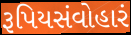
રૂપિયસંવોહારં